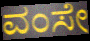
ವಂಸೇ